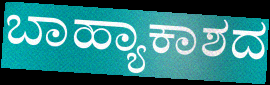
ಬಾಹ್ಯಾಕಾಶದ